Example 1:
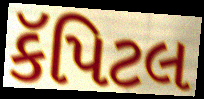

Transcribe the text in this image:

કૅપિટલ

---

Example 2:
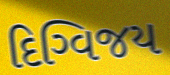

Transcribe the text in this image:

દિગ્વિજય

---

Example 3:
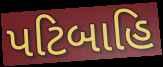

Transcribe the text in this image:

પટિબાહિ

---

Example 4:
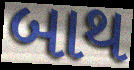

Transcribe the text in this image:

બાથ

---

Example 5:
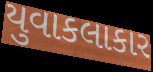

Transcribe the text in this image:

યુવાકલાકાર